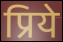
प्रिये